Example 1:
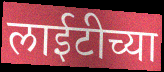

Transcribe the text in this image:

लाईटीच्या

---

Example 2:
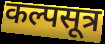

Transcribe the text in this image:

कल्पसूत्र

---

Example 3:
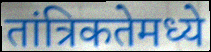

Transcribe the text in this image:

तांत्रिकतेमध्ये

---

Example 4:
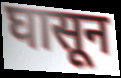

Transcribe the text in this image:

घासून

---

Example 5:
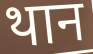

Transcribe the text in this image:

थान